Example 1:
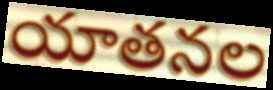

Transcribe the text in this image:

యాతనల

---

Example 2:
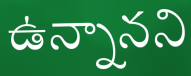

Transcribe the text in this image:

ఉన్నానని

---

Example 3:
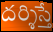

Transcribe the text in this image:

దర్శిస్తే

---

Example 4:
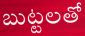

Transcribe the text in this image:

బుట్టలతో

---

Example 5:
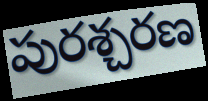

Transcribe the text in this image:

పురశ్చరణ